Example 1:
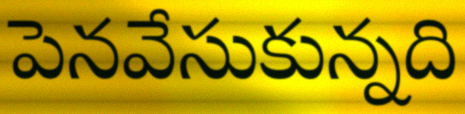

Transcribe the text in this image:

పెనవేసుకున్నది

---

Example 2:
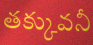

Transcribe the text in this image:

తక్కువనీ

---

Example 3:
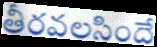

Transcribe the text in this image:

తీరవలసిందే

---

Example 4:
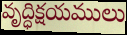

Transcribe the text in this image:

వృద్ధిక్షయములు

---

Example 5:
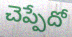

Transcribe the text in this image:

చెప్పేదో